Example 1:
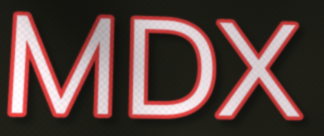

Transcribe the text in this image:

MDX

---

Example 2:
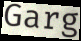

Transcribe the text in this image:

Garg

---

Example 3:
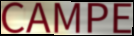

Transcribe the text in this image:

CAMPE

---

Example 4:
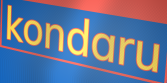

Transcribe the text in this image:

kondaru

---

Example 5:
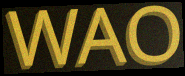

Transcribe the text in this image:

WAO